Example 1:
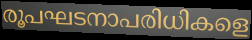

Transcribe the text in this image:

രൂപഘടനാപരിധികളെ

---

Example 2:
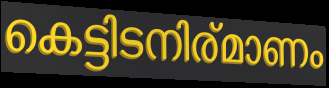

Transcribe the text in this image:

കെട്ടിടനിര്മാണം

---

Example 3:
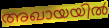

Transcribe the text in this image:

അഖായയിൽ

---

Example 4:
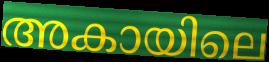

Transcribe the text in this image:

അകായിലെ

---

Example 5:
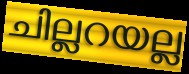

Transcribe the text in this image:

ചില്ലറയല്ല